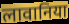
लावानिया